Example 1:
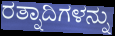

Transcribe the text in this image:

ರತ್ನಾದಿಗಳನ್ನು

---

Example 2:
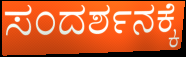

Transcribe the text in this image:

ಸಂದರ್ಶನಕ್ಕೆ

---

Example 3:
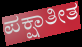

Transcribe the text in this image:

ಪಕ್ಷಾತೀತ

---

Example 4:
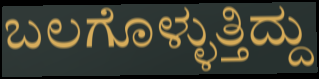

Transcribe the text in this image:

ಬಲಗೊಳ್ಳುತ್ತಿದ್ದು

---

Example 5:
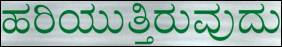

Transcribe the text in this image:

ಹರಿಯುತ್ತಿರುವುದು